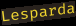
Lesparda